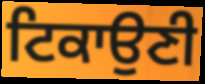
ਟਿਕਾਉਣੀ